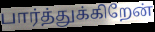
பார்த்துக்கிறேன்